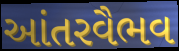
આંતરવૈભવ